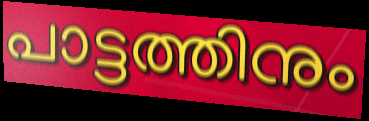
പാട്ടത്തിനും